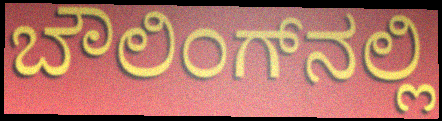
ಬೌಲಿಂಗ್‌ನಲ್ಲಿ